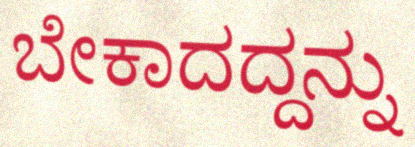
ಬೇಕಾದದ್ದನ್ನು